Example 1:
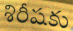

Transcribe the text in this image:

శిరీషకు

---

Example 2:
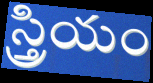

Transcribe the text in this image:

స్త్రియం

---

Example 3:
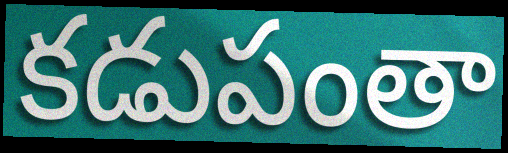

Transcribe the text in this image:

కడుపంతా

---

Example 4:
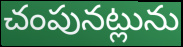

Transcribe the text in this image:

చంపునట్లును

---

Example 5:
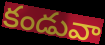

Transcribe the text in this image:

కండువా